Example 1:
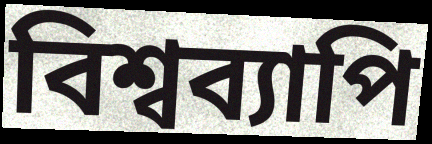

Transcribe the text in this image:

বিশ্বব্যাপি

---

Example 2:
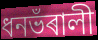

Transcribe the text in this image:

ধনভঁৰালী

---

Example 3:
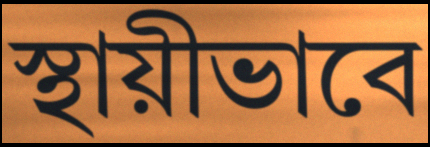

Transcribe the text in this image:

স্থায়ীভাবে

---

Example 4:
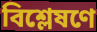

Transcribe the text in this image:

বিশ্লেষণে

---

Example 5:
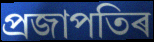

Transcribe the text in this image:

প্ৰজাপতিৰ